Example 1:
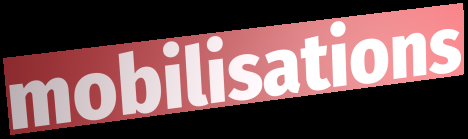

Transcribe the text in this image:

mobilisations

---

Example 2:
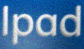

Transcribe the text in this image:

Ipad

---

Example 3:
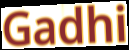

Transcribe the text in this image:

Gadhi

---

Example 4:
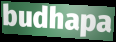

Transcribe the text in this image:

budhapa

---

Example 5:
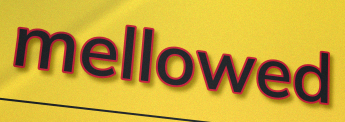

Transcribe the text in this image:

mellowed